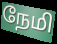
நேமி